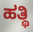
ಹತ್ಥಿ